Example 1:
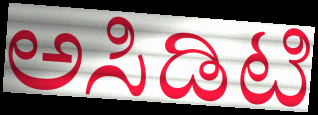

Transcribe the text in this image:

ಅಸಿಡಿಟಿ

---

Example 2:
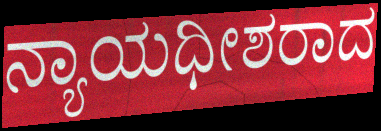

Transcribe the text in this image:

ನ್ಯಾಯಧೀಶರಾದ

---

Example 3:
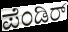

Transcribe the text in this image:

ಪೆಂಡಿರ್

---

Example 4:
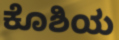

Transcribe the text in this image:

ಕೊಶಿಯ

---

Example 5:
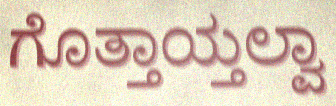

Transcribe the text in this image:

ಗೊತ್ತಾಯ್ತಲ್ವಾ